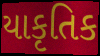
યાકૃતિક